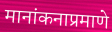
मानांकनाप्रमाणे